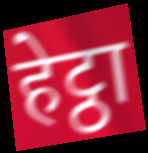
हेट्ठा